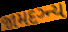
જામદગ્ન્ય